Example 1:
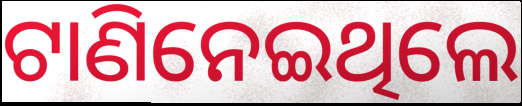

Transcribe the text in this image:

ଟାଣିନେଇଥିଲେ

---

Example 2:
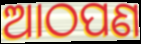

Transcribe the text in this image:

ଆଠପଣ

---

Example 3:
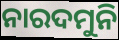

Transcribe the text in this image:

ନାରଦମୁନି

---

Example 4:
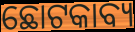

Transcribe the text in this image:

ଛୋଟକାବ୍ୟ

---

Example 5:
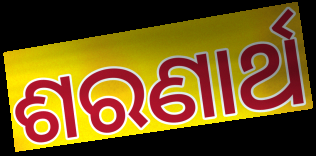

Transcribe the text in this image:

ଶରଣାର୍ଥ